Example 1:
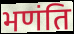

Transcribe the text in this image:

भणंति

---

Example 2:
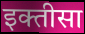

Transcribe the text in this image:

इक्तीसा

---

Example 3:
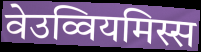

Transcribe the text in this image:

वेउव्वियमिस्स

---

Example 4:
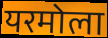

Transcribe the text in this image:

यरमोला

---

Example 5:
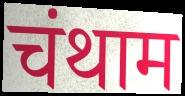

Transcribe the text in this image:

चंथाम